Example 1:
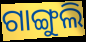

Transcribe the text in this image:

ଗାଙ୍ଗୁଲି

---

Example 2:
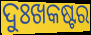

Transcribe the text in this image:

ଦୁଃଖକଷ୍ଟର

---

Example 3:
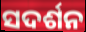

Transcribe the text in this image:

ସଦର୍ଶନ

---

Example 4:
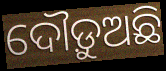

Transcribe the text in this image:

ଦୌଡ଼ୁଅଛି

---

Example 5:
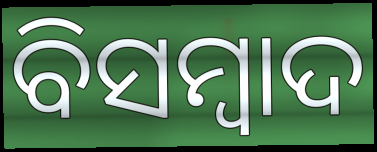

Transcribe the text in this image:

ବିସମ୍ୱାଦ